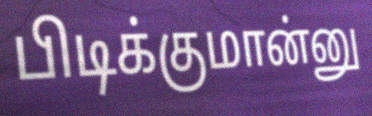
பிடிக்குமான்னு